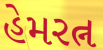
હેમરત્ન